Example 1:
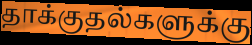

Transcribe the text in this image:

தாக்குதல்களுக்கு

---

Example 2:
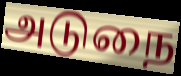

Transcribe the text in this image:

அடுநை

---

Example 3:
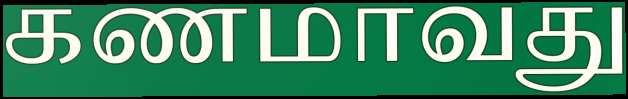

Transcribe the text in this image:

கணமாவது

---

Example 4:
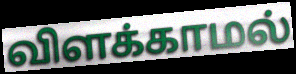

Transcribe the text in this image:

விளக்காமல்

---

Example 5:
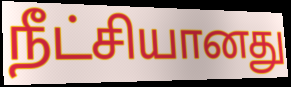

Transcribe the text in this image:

நீட்சியானது